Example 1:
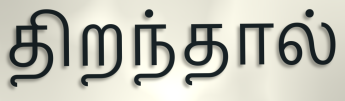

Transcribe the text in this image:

திறந்தால்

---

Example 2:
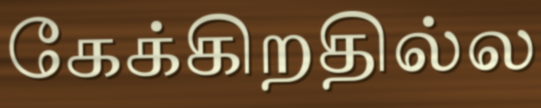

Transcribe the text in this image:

கேக்கிறதில்ல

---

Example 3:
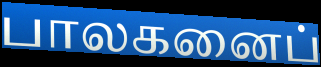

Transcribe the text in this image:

பாலகனைப்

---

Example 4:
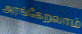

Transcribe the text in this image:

அரங்கேறலாம்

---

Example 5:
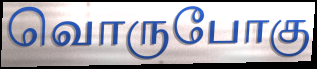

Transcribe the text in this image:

வொருபோகு